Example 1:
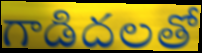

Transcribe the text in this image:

గాడిదలతో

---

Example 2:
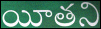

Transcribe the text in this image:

యీతని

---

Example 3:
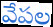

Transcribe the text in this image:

వేపల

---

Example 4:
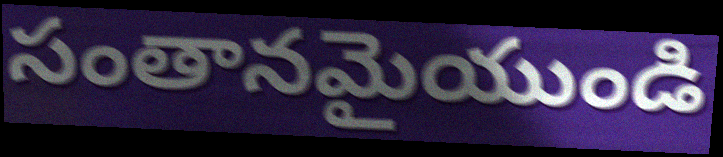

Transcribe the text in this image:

సంతానమైయుండి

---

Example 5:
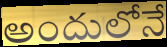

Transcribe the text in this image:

అందులోనే